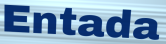
Entada